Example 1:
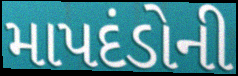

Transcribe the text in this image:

માપદંડોની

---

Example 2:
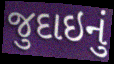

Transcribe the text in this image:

જુદાઇનું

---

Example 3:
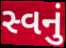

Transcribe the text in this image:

સ્વનું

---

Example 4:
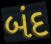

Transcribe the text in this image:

બંદ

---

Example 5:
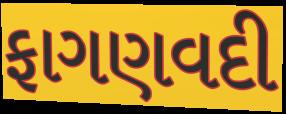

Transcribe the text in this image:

ફાગણવદી